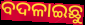
ବଦଳାଇଛୁ